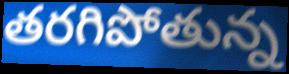
తరగిపోతున్న